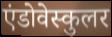
एंडोवेस्कुलर